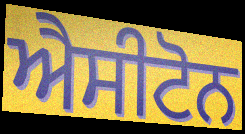
ਐਸੀਟੋਨ